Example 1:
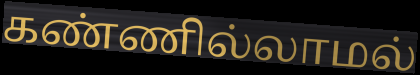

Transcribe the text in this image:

கண்ணில்லாமல்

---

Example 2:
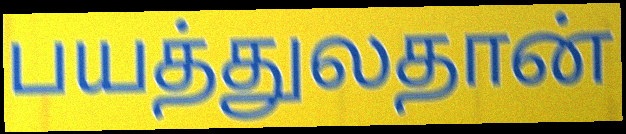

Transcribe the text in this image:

பயத்துலதான்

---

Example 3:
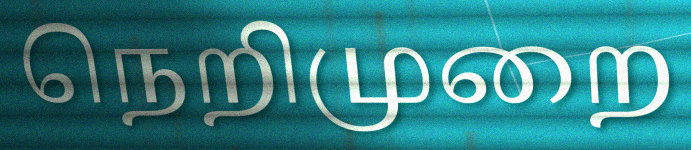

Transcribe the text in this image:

நெறிமுறை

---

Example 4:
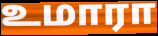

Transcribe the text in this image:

உமாரா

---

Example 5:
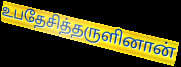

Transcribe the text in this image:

உபதேசித்தருளினான்